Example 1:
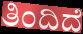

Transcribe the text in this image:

ತಿಂದಿದೆ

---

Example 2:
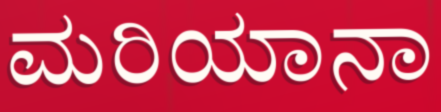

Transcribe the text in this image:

ಮರಿಯಾನಾ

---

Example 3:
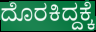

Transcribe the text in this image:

ದೊರಕಿದ್ದಕ್ಕೆ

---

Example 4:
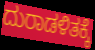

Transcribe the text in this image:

ದುರಾಡಳಿತಕ್ಕೆ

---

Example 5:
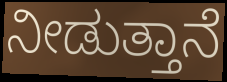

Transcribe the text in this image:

ನೀಡುತ್ತಾನೆ